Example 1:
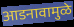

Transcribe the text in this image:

आडनावामुळे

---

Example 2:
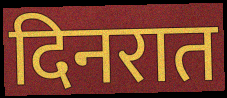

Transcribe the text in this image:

दिनरात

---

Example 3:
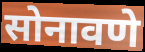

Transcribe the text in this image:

सोनावणे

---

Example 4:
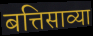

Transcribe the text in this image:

बत्तिसाव्या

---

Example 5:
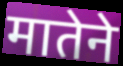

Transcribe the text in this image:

मातेने